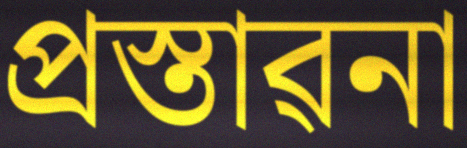
প্ৰস্তাৱনা